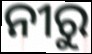
ନୀରୁ